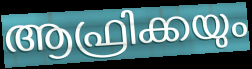
ആഫ്രിക്കയും